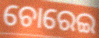
ଚୋରେଇ